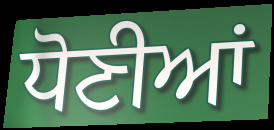
ਧੋਣੀਆਂ